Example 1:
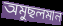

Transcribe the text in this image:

অমুছলমান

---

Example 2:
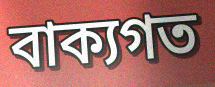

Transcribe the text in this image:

বাক্যগত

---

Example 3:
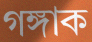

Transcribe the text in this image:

গঙ্গাক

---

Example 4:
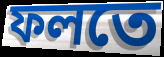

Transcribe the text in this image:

ফলতে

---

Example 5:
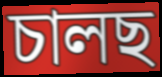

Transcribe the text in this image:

চালছ